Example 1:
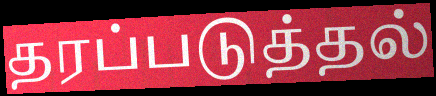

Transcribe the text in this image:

தரப்படுத்தல்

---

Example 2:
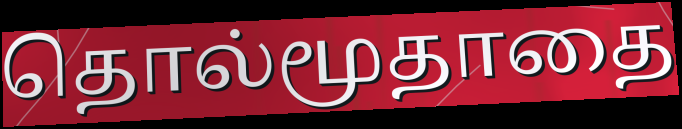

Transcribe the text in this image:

தொல்மூதாதை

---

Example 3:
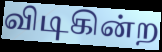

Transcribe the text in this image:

விடிகின்ற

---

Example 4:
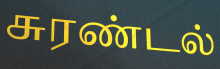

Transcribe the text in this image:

சுரண்டல்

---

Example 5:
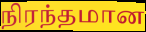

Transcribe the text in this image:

நிரந்தமான